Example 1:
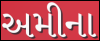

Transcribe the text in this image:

અમીના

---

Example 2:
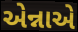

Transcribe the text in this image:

એન્નાએ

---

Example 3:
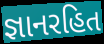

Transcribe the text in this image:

જ્ઞાનરહિત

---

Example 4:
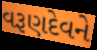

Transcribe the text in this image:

વરૂણદેવને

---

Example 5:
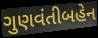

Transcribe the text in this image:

ગુણવંતીબહેન